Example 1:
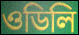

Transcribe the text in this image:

ওডিলি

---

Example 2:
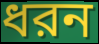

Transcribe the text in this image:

ধরন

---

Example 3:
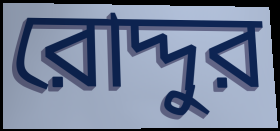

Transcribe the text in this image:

রোদ্দুর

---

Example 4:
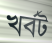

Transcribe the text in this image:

খর্বট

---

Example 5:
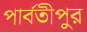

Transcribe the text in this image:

পার্বতীপুর